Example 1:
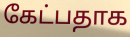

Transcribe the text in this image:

கேட்பதாக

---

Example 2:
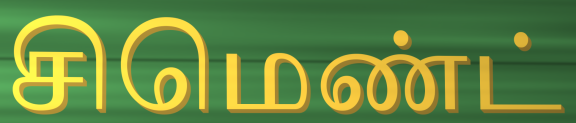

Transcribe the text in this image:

சிமெண்ட்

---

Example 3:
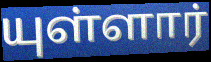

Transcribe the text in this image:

யுள்ளார்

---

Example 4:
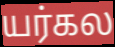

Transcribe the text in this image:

யர்கல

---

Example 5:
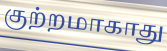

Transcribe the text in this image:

குற்றமாகாது